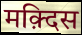
मक़्दिस